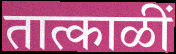
तात्काळीं